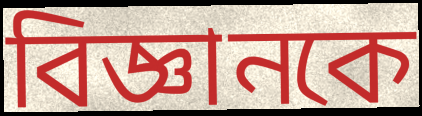
বিজ্ঞানকে